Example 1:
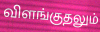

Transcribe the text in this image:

விளங்குதலும்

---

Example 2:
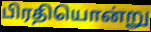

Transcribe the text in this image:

பிரதியொன்று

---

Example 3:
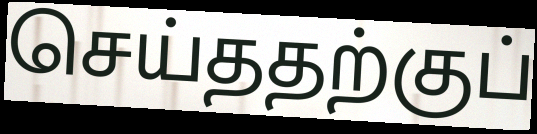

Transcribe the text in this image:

செய்ததற்குப்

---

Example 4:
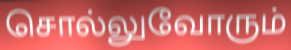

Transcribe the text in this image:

சொல்லுவோரும்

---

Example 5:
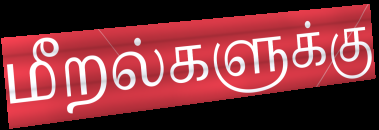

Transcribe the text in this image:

மீறல்களுக்கு